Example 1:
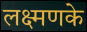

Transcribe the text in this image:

लक्ष्मणके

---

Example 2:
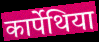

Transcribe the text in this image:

कार्पेथिया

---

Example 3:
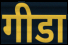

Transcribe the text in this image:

गीडा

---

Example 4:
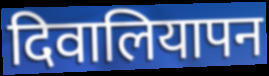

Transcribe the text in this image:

दिवालियापन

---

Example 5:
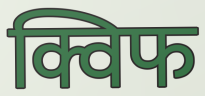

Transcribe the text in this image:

क्विफ